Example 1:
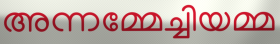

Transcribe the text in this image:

അന്നമ്മേച്ചിയമ്മ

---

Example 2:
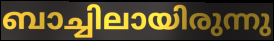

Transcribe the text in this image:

ബാച്ചിലായിരുന്നു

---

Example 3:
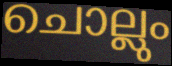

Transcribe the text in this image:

ചൊല്ലും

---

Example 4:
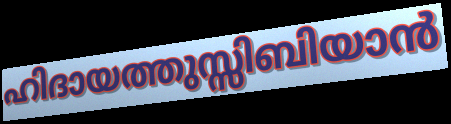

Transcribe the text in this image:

ഹിദായത്തുസ്സിബിയാൻ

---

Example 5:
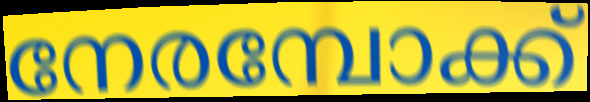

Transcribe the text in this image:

നേരമ്പോക്ക്